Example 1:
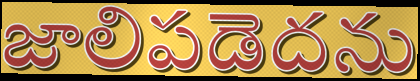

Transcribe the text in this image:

జాలిపడెదను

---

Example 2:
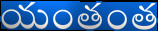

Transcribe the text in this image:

యంతంత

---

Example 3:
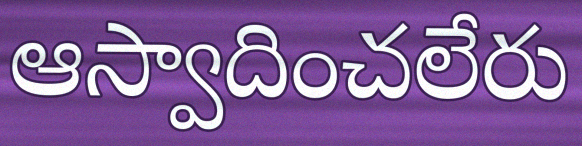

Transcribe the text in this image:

ఆస్వాదించలేరు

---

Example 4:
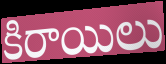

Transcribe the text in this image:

కిరాయిలు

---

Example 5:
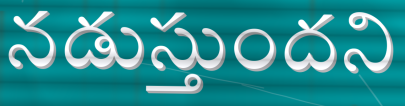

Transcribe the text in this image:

నడుస్తుందని